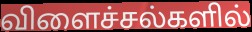
விளைச்சல்களில்